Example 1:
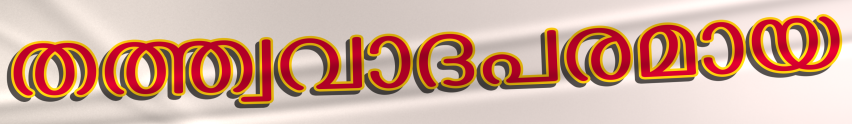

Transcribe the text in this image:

തത്ത്വവാദപരമായ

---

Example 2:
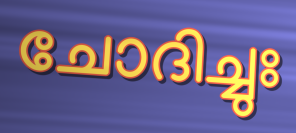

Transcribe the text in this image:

ചോദിച്ചുഃ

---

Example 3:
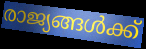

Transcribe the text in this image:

രാജ്യങ്ങൾക്ക്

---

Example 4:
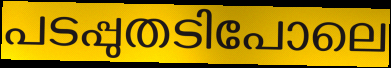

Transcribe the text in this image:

പടപ്പുതടിപോലെ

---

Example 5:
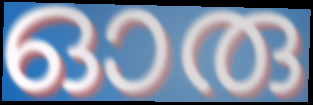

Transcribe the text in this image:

ഓരു